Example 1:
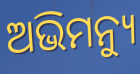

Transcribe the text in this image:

ଅଭିମନ୍ଯୁ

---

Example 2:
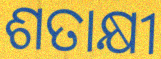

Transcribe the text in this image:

ଶତାକ୍ଷୀ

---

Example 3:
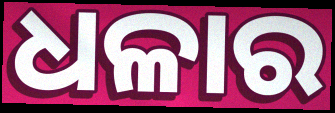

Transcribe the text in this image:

ଧଳାର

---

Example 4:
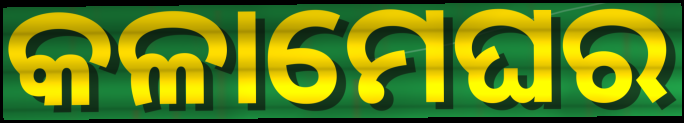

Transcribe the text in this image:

କଳାମେଘର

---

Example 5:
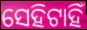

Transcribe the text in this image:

ସେହିଟାହିଁ